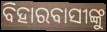
ବିହାରବାସୀଙ୍କୁ